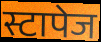
स्टापेज